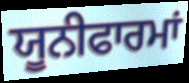
ਯੂਨੀਫਾਰਮਾਂ